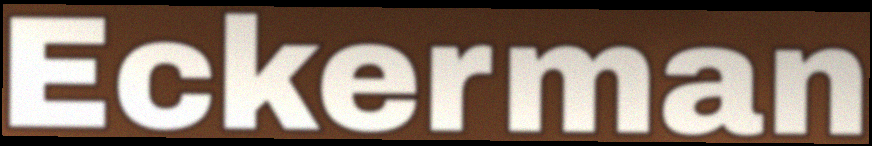
Eckerman